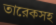
তারেকসহ